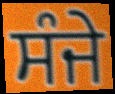
ਸੰਜੇ